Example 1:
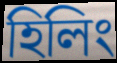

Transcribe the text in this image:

হিলিং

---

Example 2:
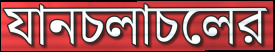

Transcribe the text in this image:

যানচলাচলের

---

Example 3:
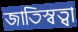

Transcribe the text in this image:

জাতিস্বত্বা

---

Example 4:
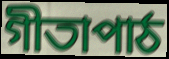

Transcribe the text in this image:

গীতাপাঠ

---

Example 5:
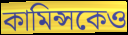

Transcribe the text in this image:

কামিন্সকেও